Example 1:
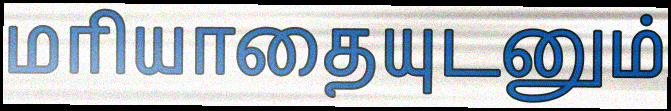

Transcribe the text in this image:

மரியாதையுடனும்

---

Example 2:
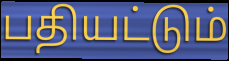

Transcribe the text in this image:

பதியட்டும்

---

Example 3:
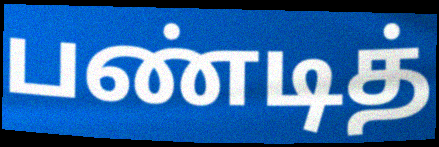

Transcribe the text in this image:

பண்டித்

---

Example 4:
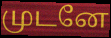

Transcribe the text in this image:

முடனே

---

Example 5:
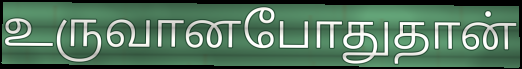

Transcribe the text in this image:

உருவானபோதுதான்